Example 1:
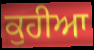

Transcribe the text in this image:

ਕੁਹੀਆ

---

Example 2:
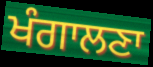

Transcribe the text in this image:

ਖੰਗਾਲਣਾ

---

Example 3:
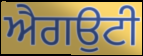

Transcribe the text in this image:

ਐਗਉਟੀ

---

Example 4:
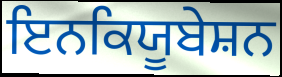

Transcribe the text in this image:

ਇਨਕਿਯੂਬੇਸ਼ਨ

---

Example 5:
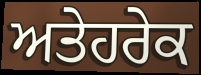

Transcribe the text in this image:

ਅਤੇਹਰੇਕ